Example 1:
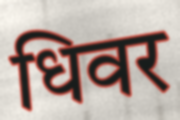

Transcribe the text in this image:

धिवर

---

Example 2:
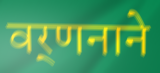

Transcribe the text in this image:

वर्णनाने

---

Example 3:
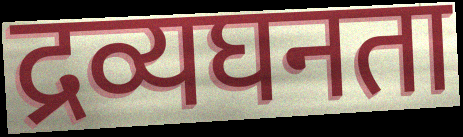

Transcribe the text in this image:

द्रव्यघनता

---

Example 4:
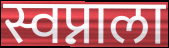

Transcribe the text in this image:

स्वप्नाला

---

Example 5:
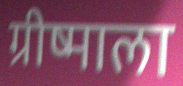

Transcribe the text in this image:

ग्रीष्माला